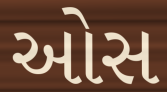
ઓસ